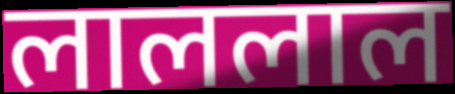
लाललाल